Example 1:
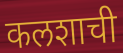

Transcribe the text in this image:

कलशाची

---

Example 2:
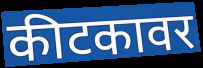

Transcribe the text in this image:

कीटकावर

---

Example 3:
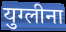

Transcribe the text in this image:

युग्लीना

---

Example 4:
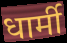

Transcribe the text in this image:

धार्मी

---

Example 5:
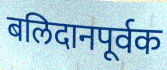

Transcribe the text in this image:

बलिदानपूर्वक